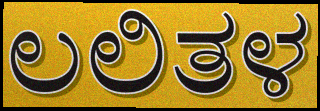
ಲಲಿತಳ